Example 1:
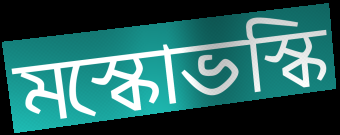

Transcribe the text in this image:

মস্কোভস্কি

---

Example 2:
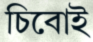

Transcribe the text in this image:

চিবোই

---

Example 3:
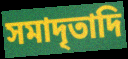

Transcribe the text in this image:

সমাদৃতাদি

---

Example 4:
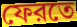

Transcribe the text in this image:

ফেরতে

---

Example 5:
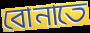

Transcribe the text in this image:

বোনাতে